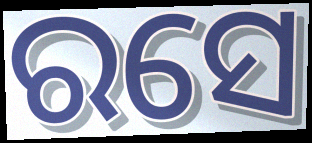
ରସେ